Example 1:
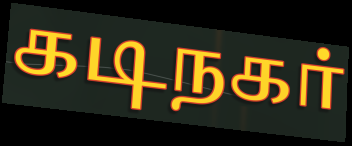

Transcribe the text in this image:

கடிநகர்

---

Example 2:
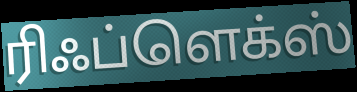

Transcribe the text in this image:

ரிஃப்ளெக்ஸ்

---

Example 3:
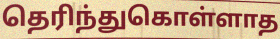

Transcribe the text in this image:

தெரிந்துகொள்ளாத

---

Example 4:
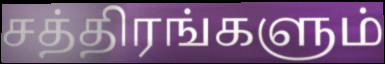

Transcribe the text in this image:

சத்திரங்களும்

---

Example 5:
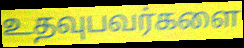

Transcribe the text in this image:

உதவுபவர்களை